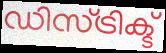
ഡിസ്ട്രിക്ട്